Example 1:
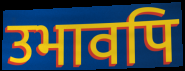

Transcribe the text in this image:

उभावपि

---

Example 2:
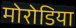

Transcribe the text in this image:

मोरोडिया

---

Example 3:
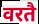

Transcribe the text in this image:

वरतै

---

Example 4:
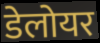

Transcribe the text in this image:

डेलोयर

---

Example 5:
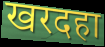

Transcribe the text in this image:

खरदहा